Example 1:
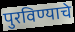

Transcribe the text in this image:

पुरविण्याचे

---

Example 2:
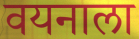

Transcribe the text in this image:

वयनाला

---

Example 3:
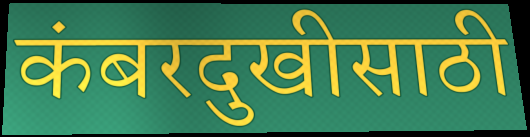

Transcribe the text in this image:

कंबरदुखीसाठी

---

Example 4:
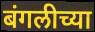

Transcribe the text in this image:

बंगलीच्या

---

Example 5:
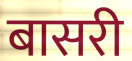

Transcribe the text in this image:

बासरी